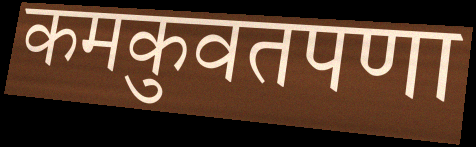
कमकुवतपणा